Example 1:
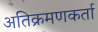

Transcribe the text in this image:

अतिक्रमणकर्ता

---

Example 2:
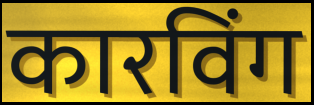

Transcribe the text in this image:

कारविंग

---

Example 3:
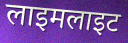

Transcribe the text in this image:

लाइमलाइट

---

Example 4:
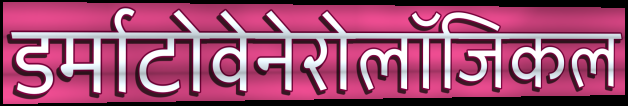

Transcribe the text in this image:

डर्माटोवेनेरोलॉजिकल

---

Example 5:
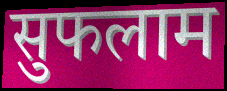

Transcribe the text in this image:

सुफलाम